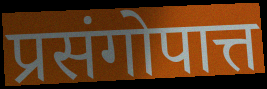
प्रसंगोपात्त